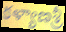
కళ్యాణశ్రీ